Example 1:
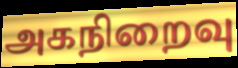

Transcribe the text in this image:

அகநிறைவு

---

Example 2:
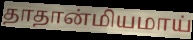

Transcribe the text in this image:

தாதான்மியமாய்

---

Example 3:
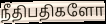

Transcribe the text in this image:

நீதிபதிகளோ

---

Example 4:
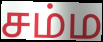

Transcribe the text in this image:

சம்ம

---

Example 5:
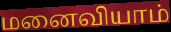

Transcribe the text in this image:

மனைவியாம்